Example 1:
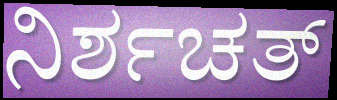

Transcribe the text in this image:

ನಿರ್ಶಚತ್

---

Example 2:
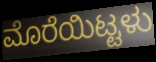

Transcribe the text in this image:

ಮೊರೆಯಿಟ್ಟಳು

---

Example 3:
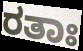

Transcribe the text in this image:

ರತಾಃ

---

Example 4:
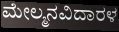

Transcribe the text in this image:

ಮೇಲ್ಮನವಿದಾರಳ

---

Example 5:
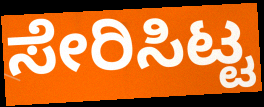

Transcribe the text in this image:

ಸೇರಿಸಿಟ್ಟ